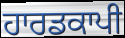
ਹਾਰਡਕਾਪੀ